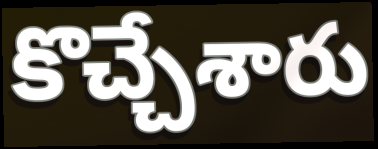
కొచ్చేశారు